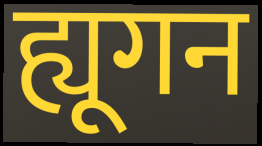
ह्यूगन